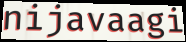
nijavaagi